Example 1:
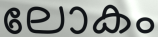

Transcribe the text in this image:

ലോകം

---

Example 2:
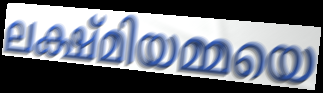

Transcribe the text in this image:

ലക്ഷ്മിയമ്മയെ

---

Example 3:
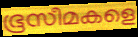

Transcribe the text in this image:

ഭൂസീമകളെ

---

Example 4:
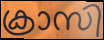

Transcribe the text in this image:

ക്രാസി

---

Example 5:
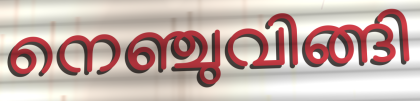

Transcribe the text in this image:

നെഞ്ചുവിങ്ങി